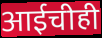
आईचीही